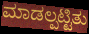
ಮಾಡಲ್ಪಟ್ಟಿತು